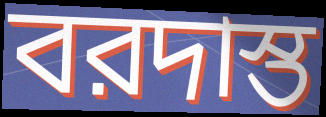
বরদাস্ত